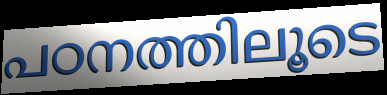
പഠനത്തിലൂടെ